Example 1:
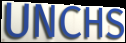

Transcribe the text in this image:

UNCHS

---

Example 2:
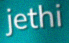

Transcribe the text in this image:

jethi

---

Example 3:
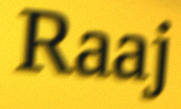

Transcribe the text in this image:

Raaj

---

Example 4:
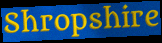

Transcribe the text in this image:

Shropshire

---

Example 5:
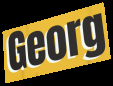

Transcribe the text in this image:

Georg